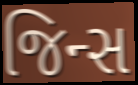
જિન્સ